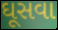
ઘૂસવા